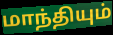
மாந்தியும்